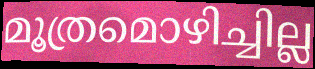
മൂത്രമൊഴിച്ചില്ല